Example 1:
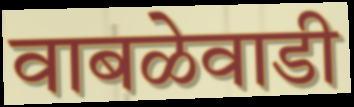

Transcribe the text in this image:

वाबळेवाडी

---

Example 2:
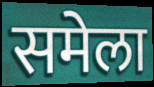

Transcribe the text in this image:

समेला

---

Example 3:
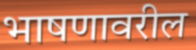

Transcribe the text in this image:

भाषणावरील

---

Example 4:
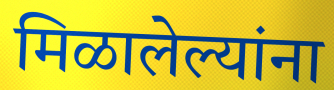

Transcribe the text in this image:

मिळालेल्यांना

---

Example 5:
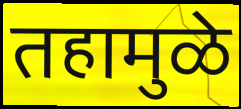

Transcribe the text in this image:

तहामुळे